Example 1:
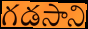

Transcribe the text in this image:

గడసాని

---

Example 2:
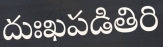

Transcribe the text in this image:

దుఃఖపడితిరి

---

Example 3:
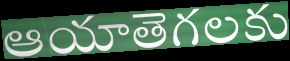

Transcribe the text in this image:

ఆయాతెగలకు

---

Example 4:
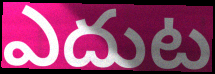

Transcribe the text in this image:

ఎదుట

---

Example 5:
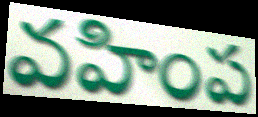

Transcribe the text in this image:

వహింప